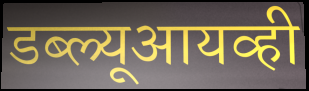
डब्ल्यूआयव्ही